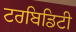
ਟਰਬਿਡਿਟੀ